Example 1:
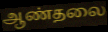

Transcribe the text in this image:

ஆண்தலை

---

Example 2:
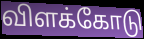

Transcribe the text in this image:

விளக்கோடு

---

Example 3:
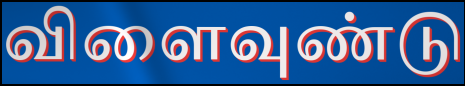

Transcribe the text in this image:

விளைவுண்டு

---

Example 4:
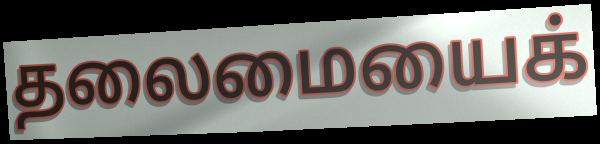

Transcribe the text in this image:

தலைமையைக்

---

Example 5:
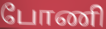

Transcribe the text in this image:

போணி